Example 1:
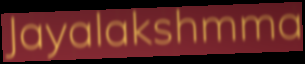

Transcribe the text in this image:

Jayalakshmma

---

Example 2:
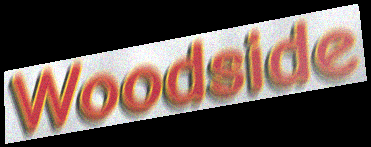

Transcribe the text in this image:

Woodside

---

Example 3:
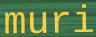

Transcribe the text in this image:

muri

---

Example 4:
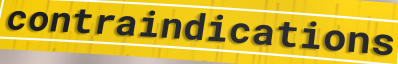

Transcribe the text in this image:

contraindications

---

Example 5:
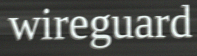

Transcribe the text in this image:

wireguard